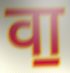
वा॒